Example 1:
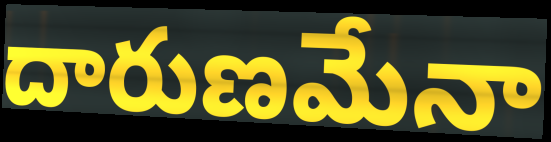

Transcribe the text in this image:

దారుణమేనా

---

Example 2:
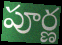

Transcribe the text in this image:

పూర్ణ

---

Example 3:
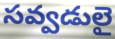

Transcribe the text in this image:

సవ్వడులై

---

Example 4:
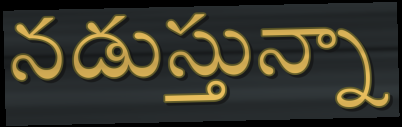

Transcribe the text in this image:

నడుస్తున్నా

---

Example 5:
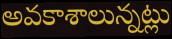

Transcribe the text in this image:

అవకాశాలున్నట్లు